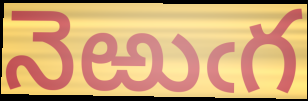
నెఱుఁగ